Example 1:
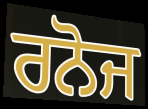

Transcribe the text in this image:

ਰਨੋਜ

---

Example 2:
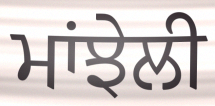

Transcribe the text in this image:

ਮਾਂਝੇਲੀ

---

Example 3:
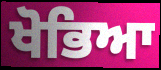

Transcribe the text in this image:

ਖੋਭਿਆ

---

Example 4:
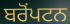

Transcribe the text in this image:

ਬਰੋਂਪਟਨ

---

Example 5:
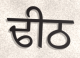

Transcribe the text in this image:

ਢੀਠ